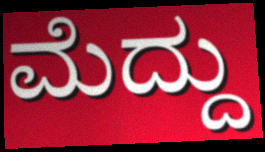
ಮೆದ್ದು